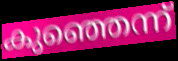
കുഞ്ഞെന്ന്